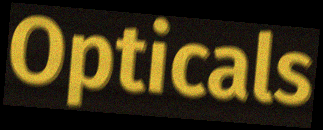
Opticals